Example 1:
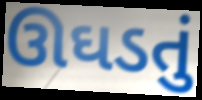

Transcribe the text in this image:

ઊઘડતું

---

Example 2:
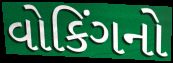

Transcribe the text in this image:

વોકિંગનો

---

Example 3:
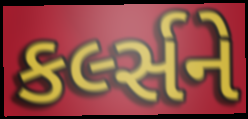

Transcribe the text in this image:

કર્લ્સને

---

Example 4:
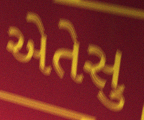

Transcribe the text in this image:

એતેસુ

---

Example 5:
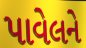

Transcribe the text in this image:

પાવેલને